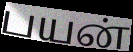
பயன்